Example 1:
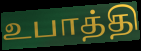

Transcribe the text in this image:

உபாத்தி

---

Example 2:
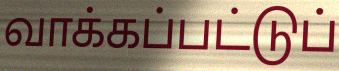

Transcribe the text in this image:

வாக்கப்பட்டுப்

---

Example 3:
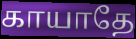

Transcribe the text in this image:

காயாதே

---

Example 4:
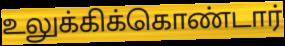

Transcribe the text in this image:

உலுக்கிக்கொண்டார்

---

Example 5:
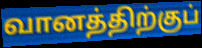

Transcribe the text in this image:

வானத்திற்குப்